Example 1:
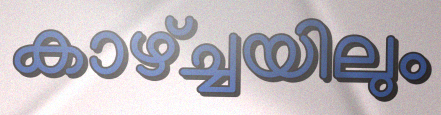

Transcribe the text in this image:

കാഴ്ച്ചയിലും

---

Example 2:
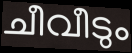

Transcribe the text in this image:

ചീവീടും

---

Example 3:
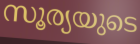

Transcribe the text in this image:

സൂര്യയുടെ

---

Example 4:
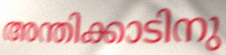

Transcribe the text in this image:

അന്തിക്കാടിനു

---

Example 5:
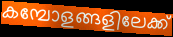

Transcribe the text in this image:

കമ്പോളങ്ങളിലേക്ക്